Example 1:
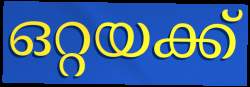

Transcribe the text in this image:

ഒറ്റയക്ക്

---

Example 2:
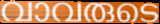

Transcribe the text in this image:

വാവരുടെ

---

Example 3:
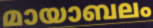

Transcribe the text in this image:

മായാബലം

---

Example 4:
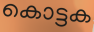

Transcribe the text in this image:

കൊട്ടക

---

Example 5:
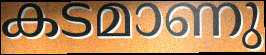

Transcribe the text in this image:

കടമാണു